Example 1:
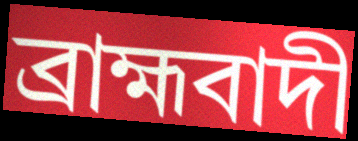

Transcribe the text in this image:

ব্রাহ্মবাদী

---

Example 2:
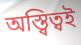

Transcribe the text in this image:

অস্ত্বিত্বই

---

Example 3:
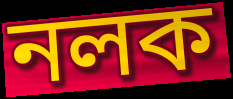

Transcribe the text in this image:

নলক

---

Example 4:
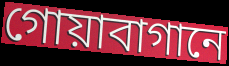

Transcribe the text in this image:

গোয়াবাগানে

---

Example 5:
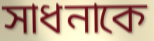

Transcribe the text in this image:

সাধনাকে